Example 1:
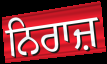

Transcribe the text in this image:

ਨਿਰਾਜ਼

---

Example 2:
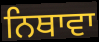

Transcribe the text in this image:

ਨਿਥਾਵਾ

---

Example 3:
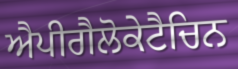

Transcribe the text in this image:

ਐਪੀਗੈਲੋਕੇਟੈਚਿਨ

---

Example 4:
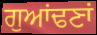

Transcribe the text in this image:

ਗੁਆਂਢਣਾਂ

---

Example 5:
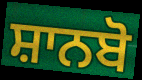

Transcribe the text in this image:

ਸ਼ਾਨਬੋ